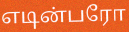
எடின்பரோ